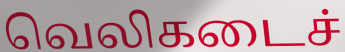
வெலிகடைச்